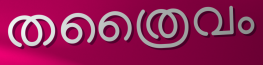
തത്രൈവം